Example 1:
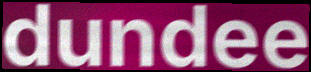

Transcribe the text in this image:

dundee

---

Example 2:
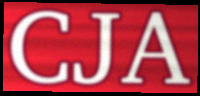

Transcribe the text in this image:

CJA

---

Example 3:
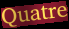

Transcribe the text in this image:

Quatre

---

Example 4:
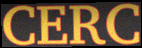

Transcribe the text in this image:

CERC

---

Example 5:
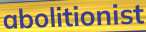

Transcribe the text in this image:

abolitionist